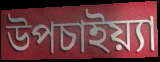
উপচাইয়্যা